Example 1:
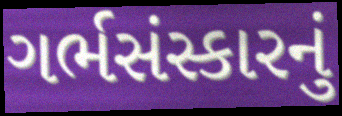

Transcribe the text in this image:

ગર્ભસંસ્કારનું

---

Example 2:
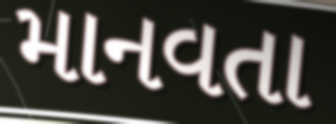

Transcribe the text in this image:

માનવતા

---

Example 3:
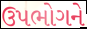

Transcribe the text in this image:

ઉપભોગને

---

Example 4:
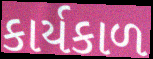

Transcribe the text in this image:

કાર્યકાળ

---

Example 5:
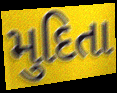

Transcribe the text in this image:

મુદિતા